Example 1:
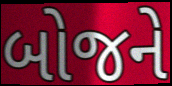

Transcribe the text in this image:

બોજને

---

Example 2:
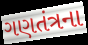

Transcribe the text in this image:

ગણતંત્રના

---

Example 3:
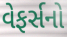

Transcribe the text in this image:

વેફર્સનો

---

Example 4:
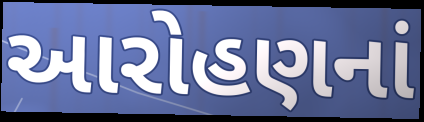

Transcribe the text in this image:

આરોહણનાં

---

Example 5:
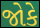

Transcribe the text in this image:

જોકે